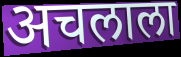
अचलाला